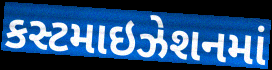
કસ્ટમાઇઝેશનમાં